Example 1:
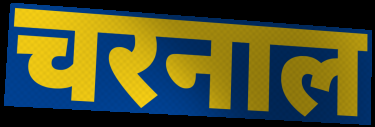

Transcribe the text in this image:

चरनाल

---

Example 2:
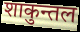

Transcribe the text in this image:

शाकुन्तल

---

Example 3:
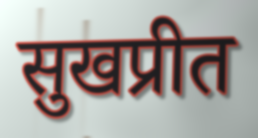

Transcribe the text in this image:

सुखप्रीत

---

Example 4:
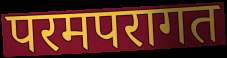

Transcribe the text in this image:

परमपरागत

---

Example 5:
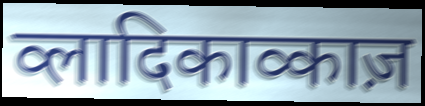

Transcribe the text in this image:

व्लादिकाव्काज़